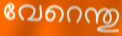
വേറെന്തു